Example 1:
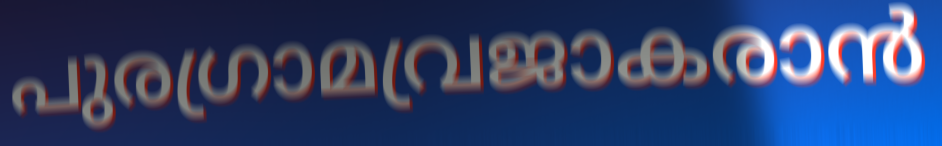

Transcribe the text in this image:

പുരഗ്രാമവ്രജാകരാൻ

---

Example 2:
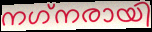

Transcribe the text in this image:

നഗ്‌നരായി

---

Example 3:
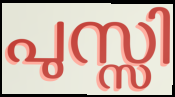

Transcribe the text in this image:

പുസ്സി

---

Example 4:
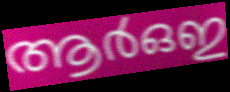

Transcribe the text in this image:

ആർഒഇ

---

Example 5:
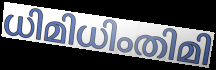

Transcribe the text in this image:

ധിമിധിംതിമി